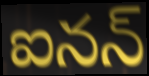
ఐనన్